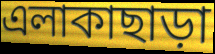
এলাকাছাড়া